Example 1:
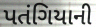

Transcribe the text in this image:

પતંગિયાની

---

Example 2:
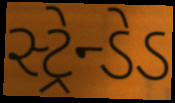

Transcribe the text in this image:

સ્ટ્રેન્ડેડ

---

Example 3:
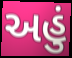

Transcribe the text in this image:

અહું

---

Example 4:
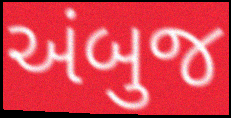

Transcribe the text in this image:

અંબુજ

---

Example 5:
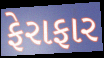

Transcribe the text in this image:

ફેરાફાર